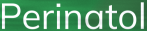
Perinatol